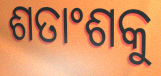
ଶତାଂଶକୁ